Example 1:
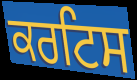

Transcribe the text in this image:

ਕਰਟਿਸ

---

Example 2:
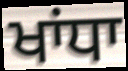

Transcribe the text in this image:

ਖਾਂਧਾ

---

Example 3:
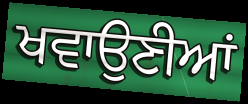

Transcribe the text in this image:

ਖਵਾਉਣੀਆਂ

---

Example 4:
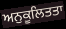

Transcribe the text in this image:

ਅਨੁਕੂਲਿਤਤਾ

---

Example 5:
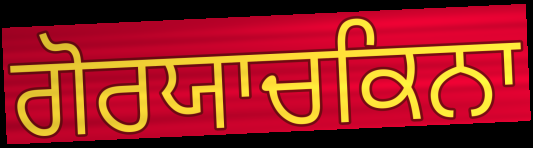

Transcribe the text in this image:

ਗੋਰਯਾਚਕਿਨਾ